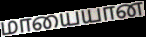
மாயையான